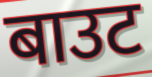
बाउट